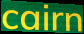
cairn